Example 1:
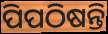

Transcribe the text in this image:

ପିପଠିଷନ୍ତି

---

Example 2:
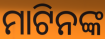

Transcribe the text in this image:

ମାଟିନଙ୍କ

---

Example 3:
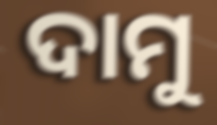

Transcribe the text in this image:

ଦାମୁ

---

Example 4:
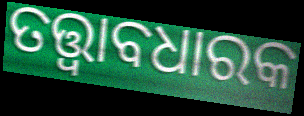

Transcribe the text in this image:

ତତ୍ତ୍ୱାବଧାରକ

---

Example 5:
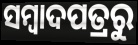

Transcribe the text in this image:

ସମ୍ବାଦପତ୍ରରୁ